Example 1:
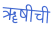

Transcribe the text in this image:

ॠषीची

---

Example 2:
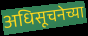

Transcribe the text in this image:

अधिसूचनेच्या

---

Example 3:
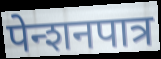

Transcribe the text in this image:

पेन्शनपात्र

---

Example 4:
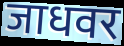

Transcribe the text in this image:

जाधवर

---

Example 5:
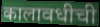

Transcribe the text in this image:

कालावधीची